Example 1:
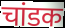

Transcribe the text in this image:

चांडक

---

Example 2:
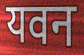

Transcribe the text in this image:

यवन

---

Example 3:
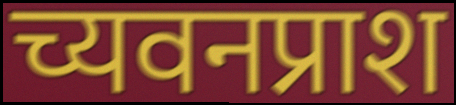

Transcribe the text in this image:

च्यवनप्राश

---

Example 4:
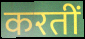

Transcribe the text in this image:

करतीं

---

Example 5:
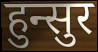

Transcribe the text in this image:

हुन्सुर